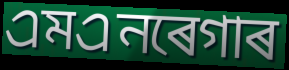
এমএনৰেগাৰ